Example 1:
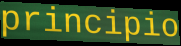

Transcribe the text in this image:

principio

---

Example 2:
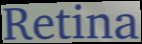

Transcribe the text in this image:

Retina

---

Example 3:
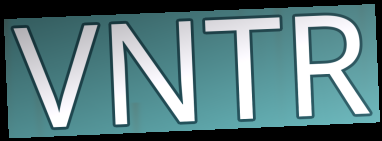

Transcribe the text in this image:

VNTR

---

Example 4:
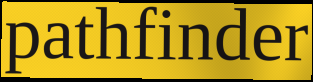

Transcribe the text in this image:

pathfinder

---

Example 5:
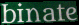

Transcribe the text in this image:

binate